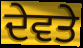
ਦੇਵਤੇ